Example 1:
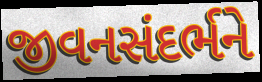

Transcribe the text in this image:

જીવનસંદર્ભને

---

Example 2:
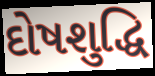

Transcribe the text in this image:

દોષશુદ્ધિ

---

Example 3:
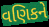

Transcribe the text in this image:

વણિકને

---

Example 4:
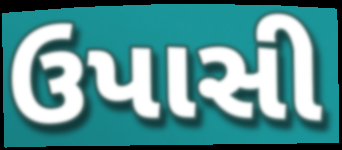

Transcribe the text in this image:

ઉપાસી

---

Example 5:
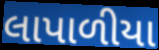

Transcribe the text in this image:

લાપાળીયા